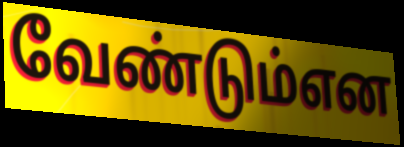
வேண்டும்என